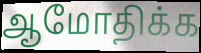
ஆமோதிக்க